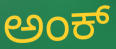
ಅಂಕ್